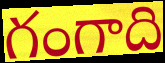
గంగాది